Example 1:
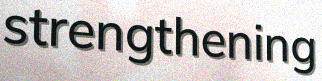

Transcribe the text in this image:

strengthening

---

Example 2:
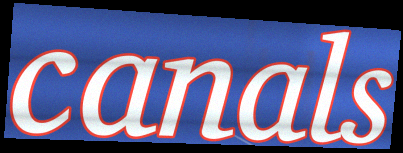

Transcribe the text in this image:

canals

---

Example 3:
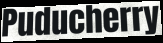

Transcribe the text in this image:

Puducherry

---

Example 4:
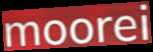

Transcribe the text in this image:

moorei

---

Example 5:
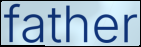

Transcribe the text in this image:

father